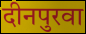
दीनपुरवा